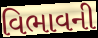
વિભાવની